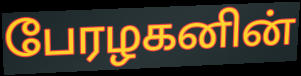
பேரழகனின்